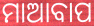
ମାଆବାପ